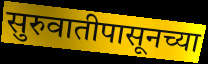
सुरुवातीपासूनच्या